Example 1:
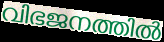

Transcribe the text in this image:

വിഭജനത്തിൽ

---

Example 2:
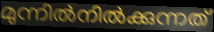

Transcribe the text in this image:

മുന്നിൽനിൽക്കുന്നത്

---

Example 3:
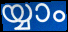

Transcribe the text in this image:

യ്യാം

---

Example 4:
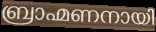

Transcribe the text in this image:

ബ്രാഹ്മണനായി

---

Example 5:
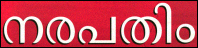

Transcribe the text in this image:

നരപതിം